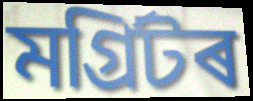
মৰ্গ্ৰিটৰ